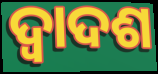
ଦ୍ୱାଦଶ